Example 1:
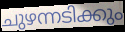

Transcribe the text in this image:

ചുഴന്നടിക്കും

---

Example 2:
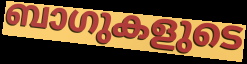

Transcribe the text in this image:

ബാഗുകളുടെ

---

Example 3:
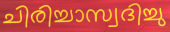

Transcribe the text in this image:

ചിരിച്ചാസ്വദിച്ചു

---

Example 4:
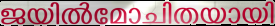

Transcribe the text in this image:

ജയിൽമോചിതയായി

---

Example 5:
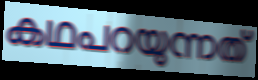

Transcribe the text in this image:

കഥപറയുന്നത്